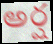
అర్ష